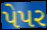
પેપર